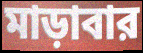
মাড়াবার